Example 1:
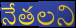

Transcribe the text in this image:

నేతలని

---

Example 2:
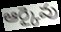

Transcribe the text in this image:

ఆర్కైవు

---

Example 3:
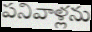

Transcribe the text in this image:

పనివాళ్లను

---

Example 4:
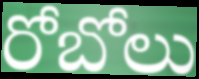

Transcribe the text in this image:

రోబోలు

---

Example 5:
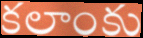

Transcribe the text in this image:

కలాంకు